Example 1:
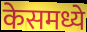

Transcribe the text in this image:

केसमध्ये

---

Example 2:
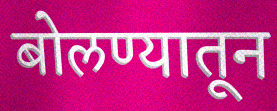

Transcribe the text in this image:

बोलण्यातून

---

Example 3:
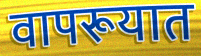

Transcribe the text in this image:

वापरूयात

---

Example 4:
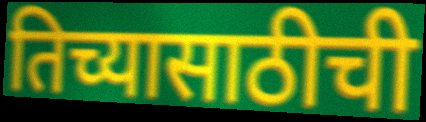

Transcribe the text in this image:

तिच्यासाठीची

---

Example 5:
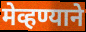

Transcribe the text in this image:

मेव्हण्याने